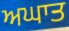
ਅਘਾਤ